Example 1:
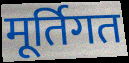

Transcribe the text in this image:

मूर्तिगत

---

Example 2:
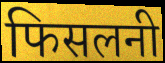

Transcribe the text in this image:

फिसलनी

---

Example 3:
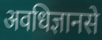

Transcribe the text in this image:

अवधिज्ञानसे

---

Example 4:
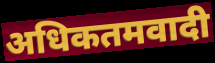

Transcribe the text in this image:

अधिकतमवादी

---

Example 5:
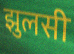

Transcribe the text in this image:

झुलसी